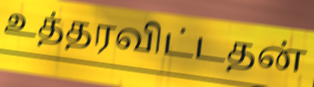
உத்தரவிட்டதன்